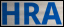
HRA